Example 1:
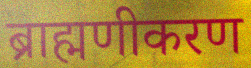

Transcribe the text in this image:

ब्राह्मणीकरण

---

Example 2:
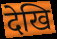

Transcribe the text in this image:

देखि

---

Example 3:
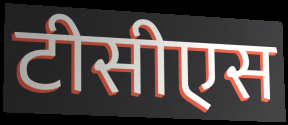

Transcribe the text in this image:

टीसीएस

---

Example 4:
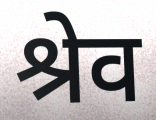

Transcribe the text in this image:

श्रेव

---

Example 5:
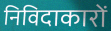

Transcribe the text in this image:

निविदाकारों